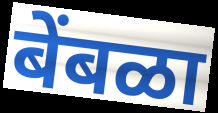
बेंबळा